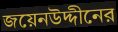
জয়েনউদ্দীনের